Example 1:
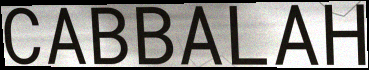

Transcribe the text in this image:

CABBALAH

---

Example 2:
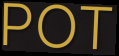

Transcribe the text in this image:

POT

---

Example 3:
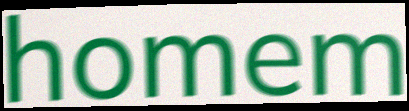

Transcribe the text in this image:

homem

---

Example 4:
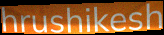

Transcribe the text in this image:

hrushikesh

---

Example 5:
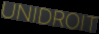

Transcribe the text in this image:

UNIDROIT